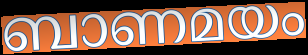
ബാണമയം